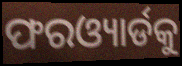
ଫରଓ୍ୟାର୍ଡକୁ